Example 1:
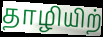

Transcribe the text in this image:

தாழியிற்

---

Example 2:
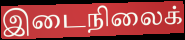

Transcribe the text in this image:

இடைநிலைக்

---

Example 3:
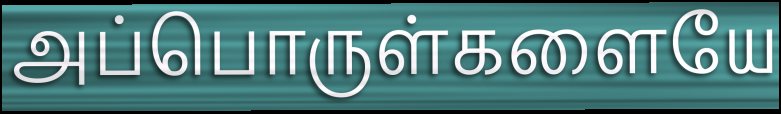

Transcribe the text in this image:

அப்பொருள்களையே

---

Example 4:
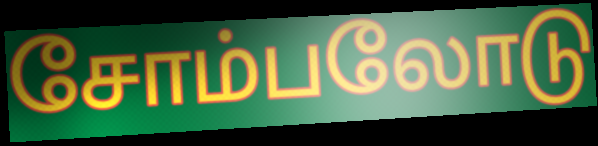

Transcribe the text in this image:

சோம்பலோடு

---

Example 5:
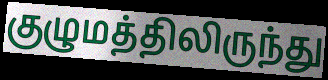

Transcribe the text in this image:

குழுமத்திலிருந்து